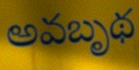
అవబృథ